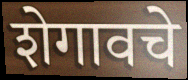
शेगावचे